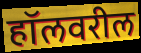
हॉलवरील